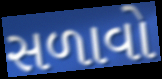
સળાવો